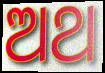
ଅଥ